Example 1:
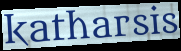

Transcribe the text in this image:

katharsis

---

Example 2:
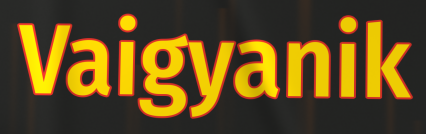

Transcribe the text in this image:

Vaigyanik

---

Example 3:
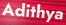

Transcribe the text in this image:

Adithya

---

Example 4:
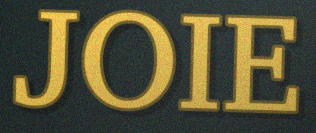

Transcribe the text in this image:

JOIE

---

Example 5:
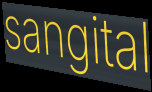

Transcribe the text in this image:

sangital